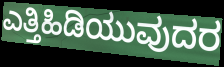
ಎತ್ತಿಹಿಡಿಯುವುದರ